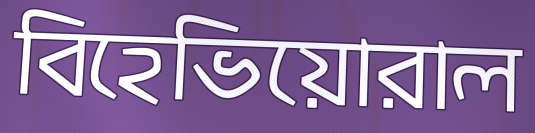
বিহেভিয়োরাল